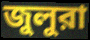
জুলুরা